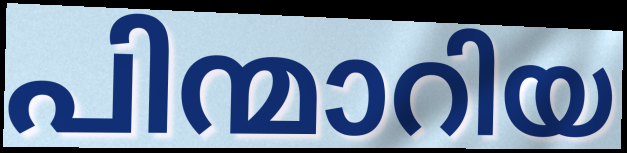
പിന്മാറിയ